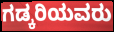
ಗಡ್ಕರಿಯವರು